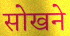
सोखने